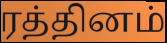
ரத்தினம்